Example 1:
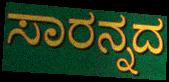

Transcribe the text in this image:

ಸಾರನ್ನದ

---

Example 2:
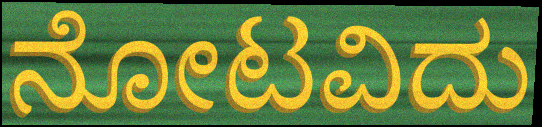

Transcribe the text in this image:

ನೋಟವಿದು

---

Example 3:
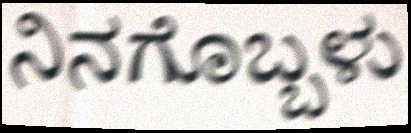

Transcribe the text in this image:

ನಿನಗೊಬ್ಬಳು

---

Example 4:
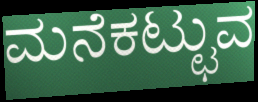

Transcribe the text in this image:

ಮನೆಕಟ್ಟುವ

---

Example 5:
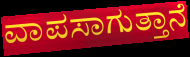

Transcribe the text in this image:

ವಾಪಸಾಗುತ್ತಾನೆ